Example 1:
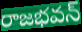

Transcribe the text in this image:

రాజభవన్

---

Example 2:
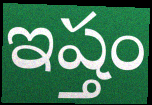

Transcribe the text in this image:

ఇష్తం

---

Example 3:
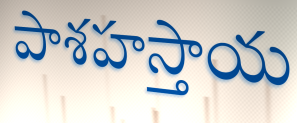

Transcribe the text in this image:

పాశహస్తాయ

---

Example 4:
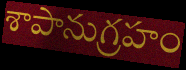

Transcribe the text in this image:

శాపానుగ్రహం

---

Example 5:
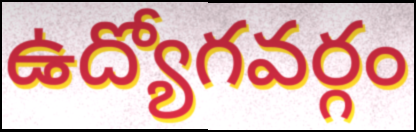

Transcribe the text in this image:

ఉద్యోగవర్గం